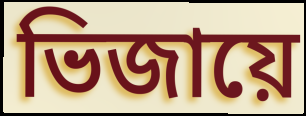
ভিজায়ে